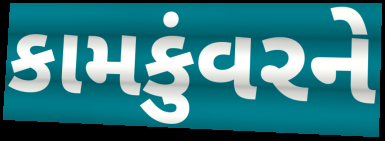
કામકુંવરને